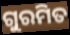
ଗୁରମିତ